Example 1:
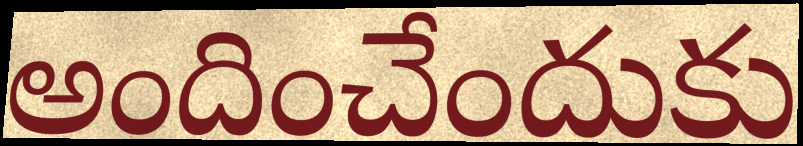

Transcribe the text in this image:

అందించేందుకు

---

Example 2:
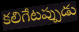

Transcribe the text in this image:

కలిగేటప్పుడు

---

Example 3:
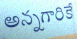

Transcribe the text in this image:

అన్నగారికే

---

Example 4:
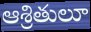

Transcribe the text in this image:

ఆశ్రితులూ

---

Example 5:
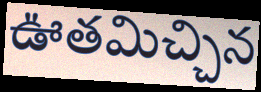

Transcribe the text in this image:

ఊతమిచ్చిన